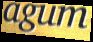
agum